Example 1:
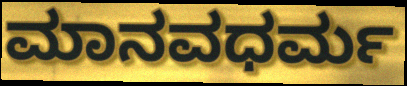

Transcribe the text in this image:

ಮಾನವಧರ್ಮ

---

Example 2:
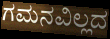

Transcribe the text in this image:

ಗಮನವಿಲ್ಲದ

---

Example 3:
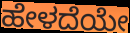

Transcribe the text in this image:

ಹೇಳದೆಯೇ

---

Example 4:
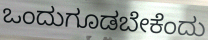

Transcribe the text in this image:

ಒಂದುಗೂಡಬೇಕೆಂದು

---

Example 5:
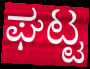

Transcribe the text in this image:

ಘಟ್ಟ